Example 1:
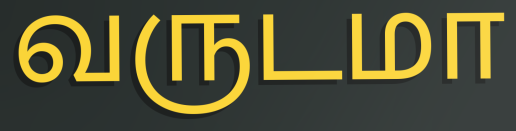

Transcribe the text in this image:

வருடமா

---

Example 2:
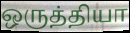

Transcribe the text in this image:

ஒருத்தியா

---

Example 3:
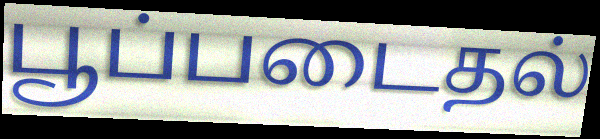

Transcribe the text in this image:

பூப்படைதல்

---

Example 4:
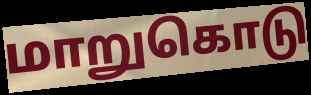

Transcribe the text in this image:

மாறுகொடு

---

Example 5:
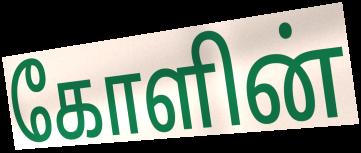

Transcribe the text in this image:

கோளின்